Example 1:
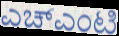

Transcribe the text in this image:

ಎಚ್ಎಂಟಿ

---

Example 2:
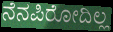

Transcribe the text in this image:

ನೆನಪಿರೋದಿಲ್ಲ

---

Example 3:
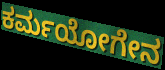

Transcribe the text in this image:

ಕರ್ಮಯೋಗೇನ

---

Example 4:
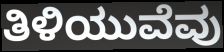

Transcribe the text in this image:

ತಿಳಿಯುವೆವು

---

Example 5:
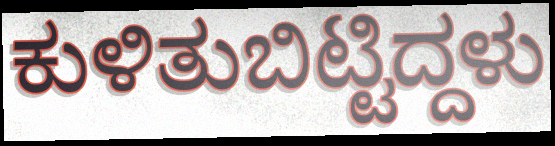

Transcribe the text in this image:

ಕುಳಿತುಬಿಟ್ಟಿದ್ದಳು